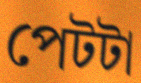
পেটটা